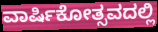
ವಾರ್ಷಿಕೋತ್ಸವದಲ್ಲಿ